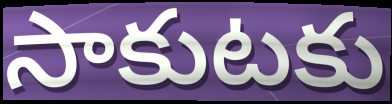
సాకుటకు